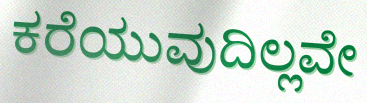
ಕರೆಯುವುದಿಲ್ಲವೇ